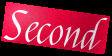
Second